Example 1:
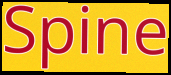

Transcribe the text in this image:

Spine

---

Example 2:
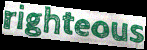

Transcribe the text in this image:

righteous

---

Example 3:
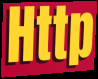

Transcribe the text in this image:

Http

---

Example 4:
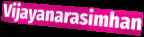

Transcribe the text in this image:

Vijayanarasimhan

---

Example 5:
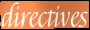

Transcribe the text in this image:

directives